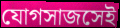
যোগসাজসেই